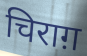
चिराग़